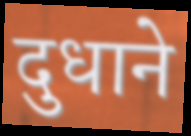
दुधाने